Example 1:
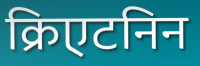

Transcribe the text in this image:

क्रिएटनिन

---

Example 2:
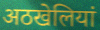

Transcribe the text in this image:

अठखेलियां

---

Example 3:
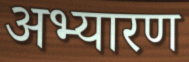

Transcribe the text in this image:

अभ्यारण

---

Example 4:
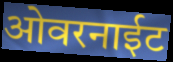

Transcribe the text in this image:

ओवरनाईट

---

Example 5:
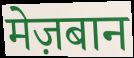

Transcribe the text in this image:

मेज़बान